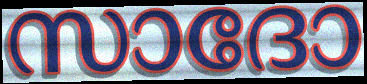
സാദോ